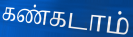
கண்கடாம்